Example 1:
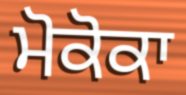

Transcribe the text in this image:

ਮੋਕੋਕਾ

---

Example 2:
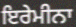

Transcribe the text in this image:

ਇਰੇਮੀਨਾ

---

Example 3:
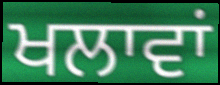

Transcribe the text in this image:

ਖਲਾਵਾਂ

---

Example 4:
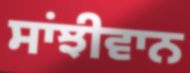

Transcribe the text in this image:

ਸਾਂਝੀਵਾਨ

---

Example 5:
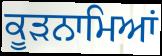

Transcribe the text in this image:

ਕੂੜਨਾਮਿਆਂ